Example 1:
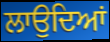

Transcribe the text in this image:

ਲਾਉਦਿਆਂ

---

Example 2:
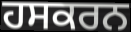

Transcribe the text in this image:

ਹਸਕਰਨ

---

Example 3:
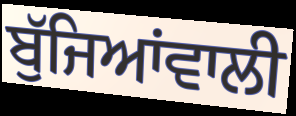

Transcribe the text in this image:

ਬੁੱਜਿਆਂਵਾਲੀ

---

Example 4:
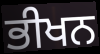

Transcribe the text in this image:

ਭੀਖਨ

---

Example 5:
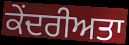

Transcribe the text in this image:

ਕੇਂਦਰੀਅਤਾ